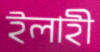
ইলাহী